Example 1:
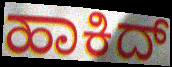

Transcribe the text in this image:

ಹಾಕಿದ್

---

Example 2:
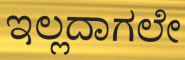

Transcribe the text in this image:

ಇಲ್ಲದಾಗಲೇ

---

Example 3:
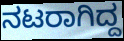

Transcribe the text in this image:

ನಟರಾಗಿದ್ದ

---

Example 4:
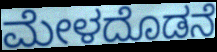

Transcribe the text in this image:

ಮೇಳದೊಡನೆ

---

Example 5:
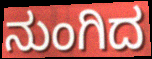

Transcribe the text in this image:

ನುಂಗಿದ